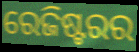
ରେଜିଷ୍ଟରର